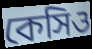
কেসিও